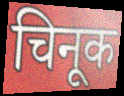
चिनूक